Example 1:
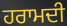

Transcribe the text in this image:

ਹਰਾਮਦੀ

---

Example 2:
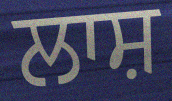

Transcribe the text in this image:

ਲਾਸ਼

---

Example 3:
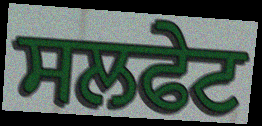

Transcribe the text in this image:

ਸਲਫੇਟ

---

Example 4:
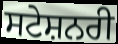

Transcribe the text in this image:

ਸਟੇਸ਼ਨਰੀ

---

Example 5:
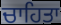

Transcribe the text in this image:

ਚਾਹਿਤਾ